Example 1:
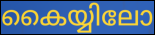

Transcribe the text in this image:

കൈയ്യിലോ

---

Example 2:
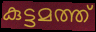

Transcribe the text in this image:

കുട്ടമത്ത്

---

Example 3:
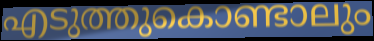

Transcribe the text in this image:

എടുത്തുകൊണ്ടാലും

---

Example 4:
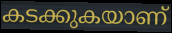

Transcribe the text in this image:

കടക്കുകയാണ്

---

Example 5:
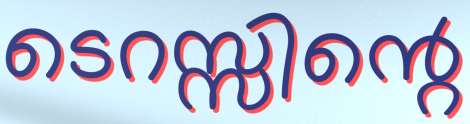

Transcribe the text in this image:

ടെറസ്സിന്റെ